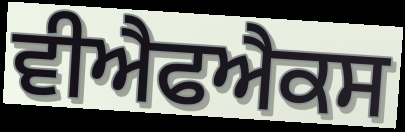
ਵੀਐਫਐਕਸ